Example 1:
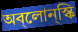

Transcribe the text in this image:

অব্‌লোন্‌স্কি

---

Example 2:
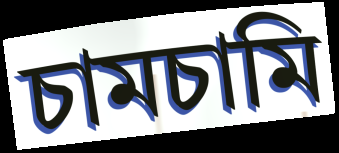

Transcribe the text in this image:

চামচামি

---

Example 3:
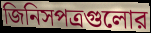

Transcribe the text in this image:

জিনিসপত্রগুলোর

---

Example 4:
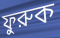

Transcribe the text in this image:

ফুরুক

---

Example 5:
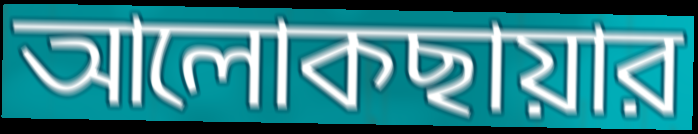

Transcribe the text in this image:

আলোকছায়ার